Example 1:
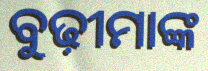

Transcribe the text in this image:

ବୁଢ଼ୀମାଙ୍କ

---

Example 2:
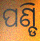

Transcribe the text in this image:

ପଣ୍ଡି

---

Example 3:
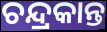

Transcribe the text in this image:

ଚନ୍ଦ୍ରକାନ୍ତ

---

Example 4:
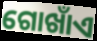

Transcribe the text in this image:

ଗୋଖାଁଏ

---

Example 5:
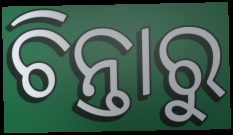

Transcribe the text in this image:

ଚିନ୍ତାରୁ